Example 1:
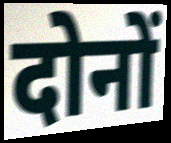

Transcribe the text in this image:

दोनों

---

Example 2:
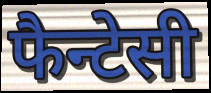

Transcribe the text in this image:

फैन्टेसी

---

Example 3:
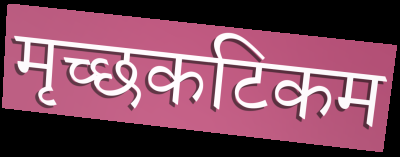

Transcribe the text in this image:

मृच्छकटिकम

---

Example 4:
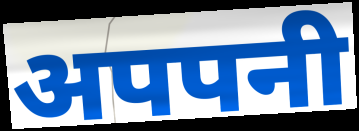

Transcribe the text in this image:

अपपनी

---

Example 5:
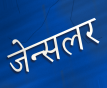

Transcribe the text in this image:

जेन्सलर